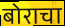
बोराचा